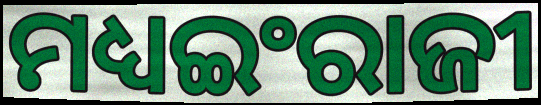
ମଧ୍ୟଇଂରାଜୀ